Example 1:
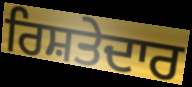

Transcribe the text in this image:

ਰਿਸ਼ਤੇਦਾਰ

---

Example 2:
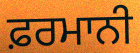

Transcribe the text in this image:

ਫ਼ਰਮਾਨੀ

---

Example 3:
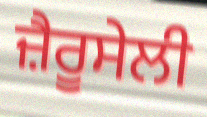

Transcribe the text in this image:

ਜ਼ੈਰੂਸੇਲੀ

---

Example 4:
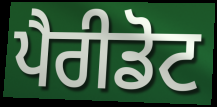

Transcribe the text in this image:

ਪੈਰੀਡੋਟ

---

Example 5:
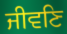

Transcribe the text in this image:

ਜੀਵਣਿ